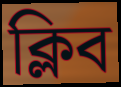
ক্লিব